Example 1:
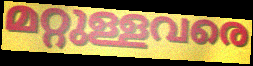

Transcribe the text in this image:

മറ്റുള്ളവരെ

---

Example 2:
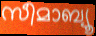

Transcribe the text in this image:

സീമാബ്യൂ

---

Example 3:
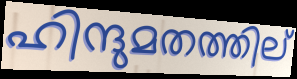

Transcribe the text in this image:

ഹിന്ദുമതത്തില്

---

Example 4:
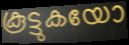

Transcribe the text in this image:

കൂട്ടുകയോ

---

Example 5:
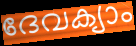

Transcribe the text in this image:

ദേവക്യാം